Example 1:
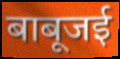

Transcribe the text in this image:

बाबूजई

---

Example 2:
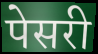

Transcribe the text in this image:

पेसरी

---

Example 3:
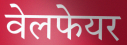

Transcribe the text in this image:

वेलफेयर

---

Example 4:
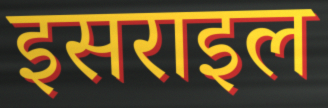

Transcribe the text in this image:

इसराइल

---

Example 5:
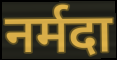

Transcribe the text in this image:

नर्मदा